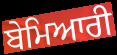
ਬੇਮਿਆਰੀ